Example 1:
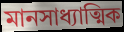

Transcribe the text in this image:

মানসাধ্যাত্মিক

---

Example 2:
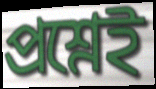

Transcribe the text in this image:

প্রশ্নেই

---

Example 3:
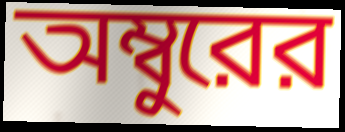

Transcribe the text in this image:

অম্বুরের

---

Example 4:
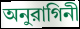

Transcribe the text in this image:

অনুরাগিনী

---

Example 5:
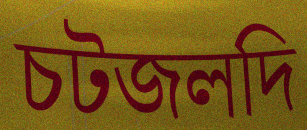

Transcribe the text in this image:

চটজলদি